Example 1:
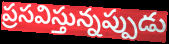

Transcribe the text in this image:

ప్రసవిస్తున్నప్పుడు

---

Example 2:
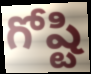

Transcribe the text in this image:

గోష్టి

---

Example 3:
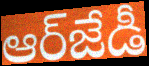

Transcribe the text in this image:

ఆర్‌జేడీ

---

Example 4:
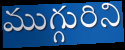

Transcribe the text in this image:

ముగ్గురిని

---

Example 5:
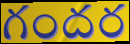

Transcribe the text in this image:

గందర